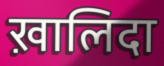
ख़ालिदा